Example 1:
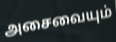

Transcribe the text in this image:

அசைவையும்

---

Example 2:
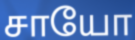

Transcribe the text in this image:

சாயோ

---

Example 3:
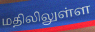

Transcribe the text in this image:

மதிலிலுள்ள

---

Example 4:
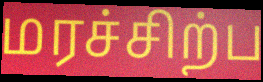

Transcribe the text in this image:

மரச்சிற்ப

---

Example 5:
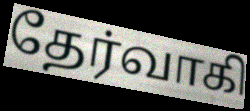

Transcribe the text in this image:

தேர்வாகி